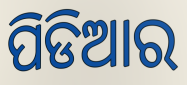
ପିଡିଆର